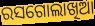
ରସଗୋଲାଖିଆ